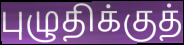
புழுதிக்குத்